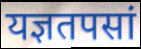
यज्ञतपसां